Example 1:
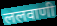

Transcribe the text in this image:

ललवाणी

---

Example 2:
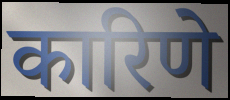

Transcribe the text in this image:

कारिणे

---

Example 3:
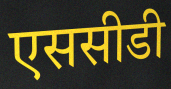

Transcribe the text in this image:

एससीडी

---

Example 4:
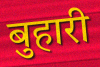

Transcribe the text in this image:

बुहारी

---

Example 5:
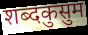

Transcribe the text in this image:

शब्दकुसुम